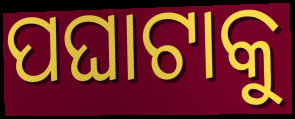
ପଘାଟାକୁ